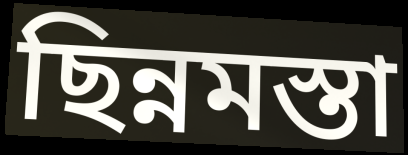
ছিন্নমস্তা